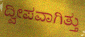
ದ್ವೀಪವಾಗಿತ್ತು